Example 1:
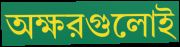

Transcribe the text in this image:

অক্ষরগুলোই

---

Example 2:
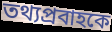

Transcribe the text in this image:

তথ্যপ্রবাহকে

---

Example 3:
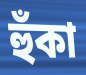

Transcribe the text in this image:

হুঁকা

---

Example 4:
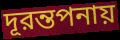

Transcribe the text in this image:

দূরন্তপনায়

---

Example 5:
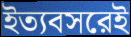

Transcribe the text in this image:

ইত্যবসরেই